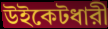
উইকেটধারী